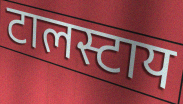
टालस्टाय